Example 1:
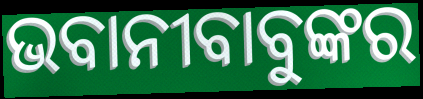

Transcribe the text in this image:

ଭବାନୀବାବୁଙ୍କର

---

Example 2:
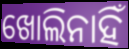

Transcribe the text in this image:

ଖୋଲିନାହିଁ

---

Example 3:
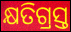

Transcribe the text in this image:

କ୍ଷତିଗ୍ରସ୍ତ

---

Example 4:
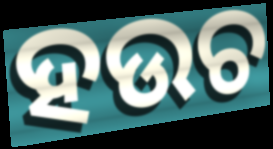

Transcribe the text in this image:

ହଉଚ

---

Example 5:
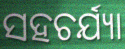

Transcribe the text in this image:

ସହଚର୍ଯ୍ୟା